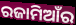
ରଜାମିଆଁର